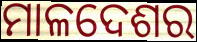
ମାଳଦେଶର